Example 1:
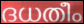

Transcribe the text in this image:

ദധതീം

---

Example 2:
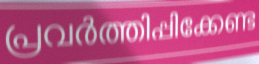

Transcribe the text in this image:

പ്രവർത്തിപ്പിക്കേണ്ട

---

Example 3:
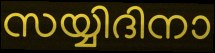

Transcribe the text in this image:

സയ്യിദിനാ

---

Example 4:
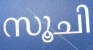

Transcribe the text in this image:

സൂചി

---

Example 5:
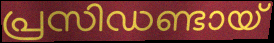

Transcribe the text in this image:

പ്രസിഡണ്ടായ്